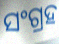
ସଂଗ୍ରହ